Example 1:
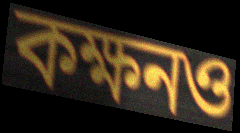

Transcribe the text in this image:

কক্ষনও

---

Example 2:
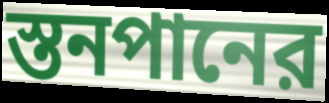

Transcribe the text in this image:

স্তনপানের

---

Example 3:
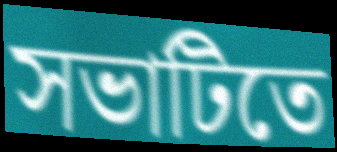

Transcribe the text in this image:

সভাটিতে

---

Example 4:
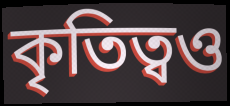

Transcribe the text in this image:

কৃতিত্বও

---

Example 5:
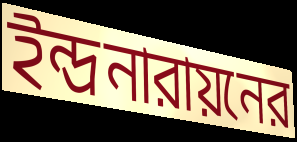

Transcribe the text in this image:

ইন্দ্রনারায়নের